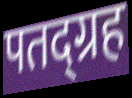
पतद्ग्रह